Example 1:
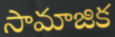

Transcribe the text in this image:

సామాజిక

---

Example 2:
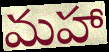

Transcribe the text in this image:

మహా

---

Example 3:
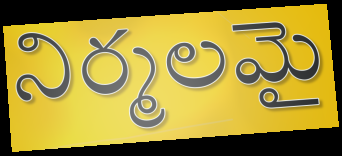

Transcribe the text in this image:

నిర్మలమై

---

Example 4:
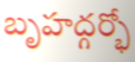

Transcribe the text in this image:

బృహద్గర్భో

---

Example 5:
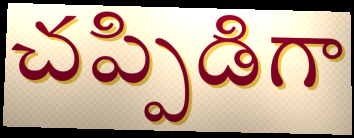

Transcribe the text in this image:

చప్పిడిగా